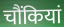
चौंकियां